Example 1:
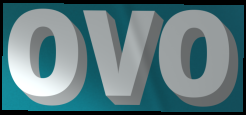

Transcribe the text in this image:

OVO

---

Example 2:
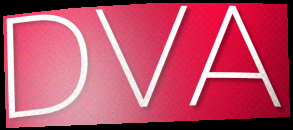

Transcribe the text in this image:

DVA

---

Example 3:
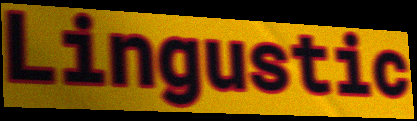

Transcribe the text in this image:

Lingustic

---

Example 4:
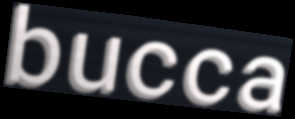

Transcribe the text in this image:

bucca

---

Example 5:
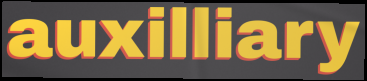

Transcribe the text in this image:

auxilliary